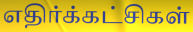
எதிர்க்கட்சிகள்